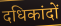
दधिकांदों